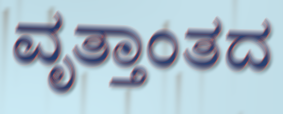
ವೃತ್ತಾಂತದ